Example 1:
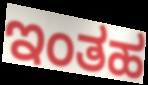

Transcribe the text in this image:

ಇಂತಹ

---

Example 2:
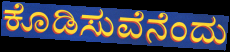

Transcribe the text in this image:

ಕೊಡಿಸುವೆನೆಂದು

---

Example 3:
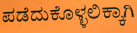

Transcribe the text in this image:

ಪಡೆದುಕೊಳ್ಳಲಿಕ್ಕಾಗಿ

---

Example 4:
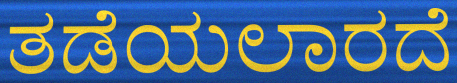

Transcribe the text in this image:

ತಡೆಯಲಾರದೆ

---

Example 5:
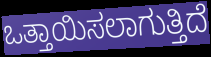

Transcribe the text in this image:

ಒತ್ತಾಯಿಸಲಾಗುತ್ತಿದೆ